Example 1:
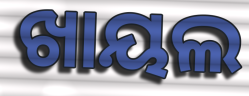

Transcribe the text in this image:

ଖାୟଲ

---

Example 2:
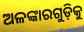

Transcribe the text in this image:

ଅଳଙ୍କାରଗୁଡ଼ିକୁ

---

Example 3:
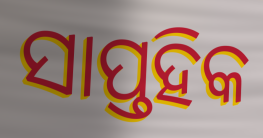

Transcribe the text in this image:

ସାପ୍ତହିକ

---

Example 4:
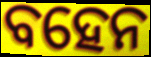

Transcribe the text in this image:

ବହେନ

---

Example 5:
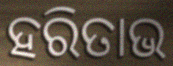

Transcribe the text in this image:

ହରିତାଭ